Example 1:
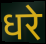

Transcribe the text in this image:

धरे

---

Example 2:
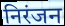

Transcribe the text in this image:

निरंजन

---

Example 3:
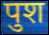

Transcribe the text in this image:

पुश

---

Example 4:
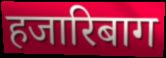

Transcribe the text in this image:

हजारिबाग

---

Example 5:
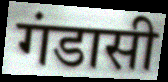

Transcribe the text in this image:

गंडासी